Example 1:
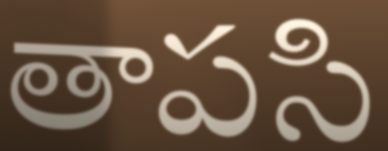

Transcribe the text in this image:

తాపసి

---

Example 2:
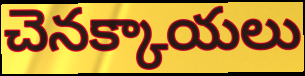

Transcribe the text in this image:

చెనక్కాయలు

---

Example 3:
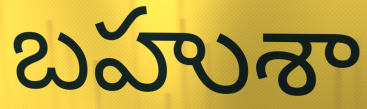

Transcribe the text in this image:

బహుశా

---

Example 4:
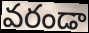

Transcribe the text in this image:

వరండా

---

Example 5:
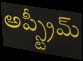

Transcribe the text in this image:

అప్స్ట్రీమ్